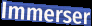
Immerser